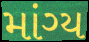
માંગ્ય